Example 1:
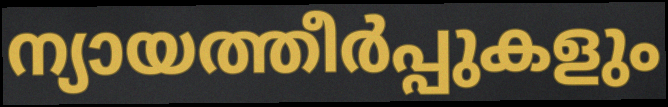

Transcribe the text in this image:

ന്യായത്തീർപ്പുകളും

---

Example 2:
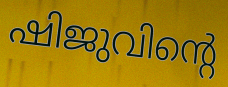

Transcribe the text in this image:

ഷിജുവിന്റെ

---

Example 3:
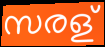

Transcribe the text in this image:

സരള്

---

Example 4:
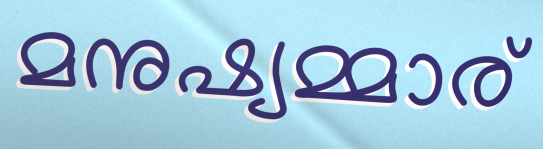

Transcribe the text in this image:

മനുഷ്യമ്മാര്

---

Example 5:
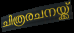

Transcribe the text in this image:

ചിത്രരചനയ്ക്ക്